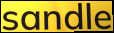
sandle